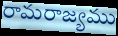
రామరాజ్యము